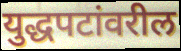
युद्धपटांवरील